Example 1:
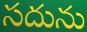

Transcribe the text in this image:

సదును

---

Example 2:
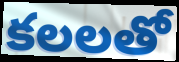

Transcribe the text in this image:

కలలతో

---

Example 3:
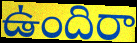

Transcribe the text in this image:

ఉందిరా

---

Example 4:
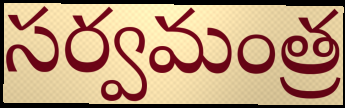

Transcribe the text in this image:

సర్వమంత్ర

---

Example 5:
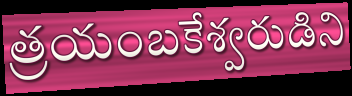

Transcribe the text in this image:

త్రయంబకేశ్వరుడిని